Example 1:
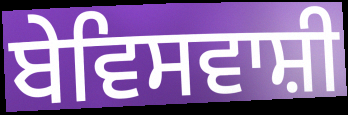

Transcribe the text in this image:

ਬੇਵਿਸਵਾਸ਼ੀ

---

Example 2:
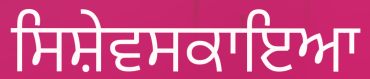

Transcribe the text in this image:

ਸਿਸ਼ੇਵਸਕਾਇਆ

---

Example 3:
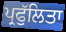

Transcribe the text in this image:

ਪ੍ਰਫੁੱਲਿਤਾ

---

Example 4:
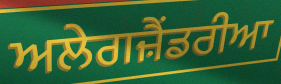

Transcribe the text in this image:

ਅਲੇਗਜ਼ੈਂਡਰੀਆ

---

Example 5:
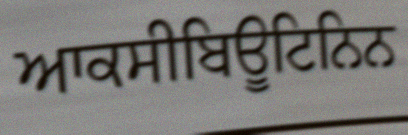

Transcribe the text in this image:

ਆਕਸੀਬਿਊਟਿਨਿਨ